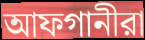
আফগানীরা